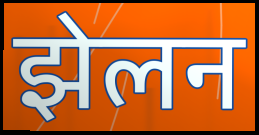
झेलन